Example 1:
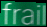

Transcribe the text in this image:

frail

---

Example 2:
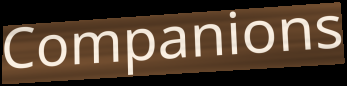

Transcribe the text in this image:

Companions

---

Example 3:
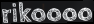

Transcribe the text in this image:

rikoooo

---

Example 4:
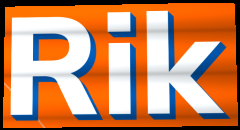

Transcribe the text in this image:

Rik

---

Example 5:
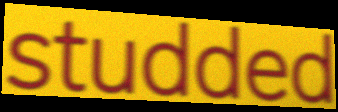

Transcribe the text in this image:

studded